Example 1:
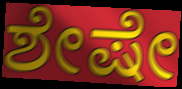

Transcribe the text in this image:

ಶೇಷೇ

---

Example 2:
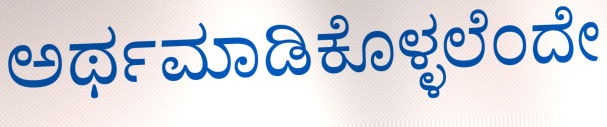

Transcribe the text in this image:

ಅರ್ಥಮಾಡಿಕೊಳ್ಳಲೆಂದೇ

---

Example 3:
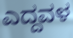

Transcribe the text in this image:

ಎದ್ದವಳ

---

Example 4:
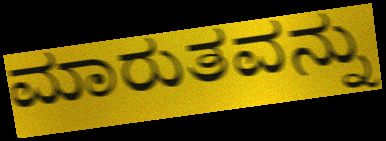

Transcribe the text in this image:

ಮಾರುತವನ್ನು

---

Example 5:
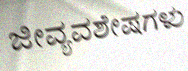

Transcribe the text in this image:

ಜೀವ್ಯವಶೇಷಗಳು